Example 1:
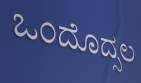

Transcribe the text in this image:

ಒಂದೊದ್ಸಲ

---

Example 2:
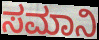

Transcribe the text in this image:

ಸಮಾನಿ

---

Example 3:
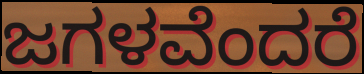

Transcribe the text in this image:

ಜಗಳವೆಂದರೆ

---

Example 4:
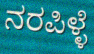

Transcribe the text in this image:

ನರಪಿಳ್ಳೆ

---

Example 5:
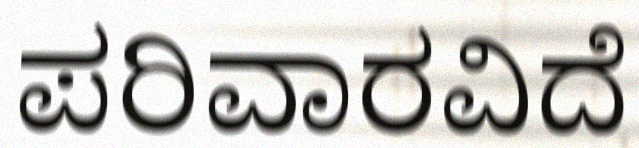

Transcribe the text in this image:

ಪರಿವಾರವಿದೆ